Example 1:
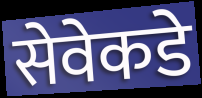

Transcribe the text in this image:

सेवेकडे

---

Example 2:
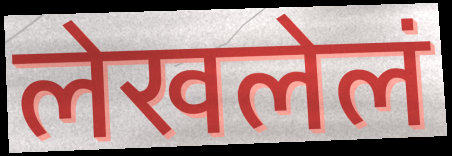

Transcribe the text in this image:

लेखलेलं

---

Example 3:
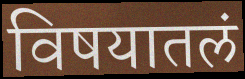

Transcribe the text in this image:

विषयातलं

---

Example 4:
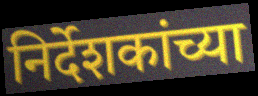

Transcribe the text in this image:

निर्देशकांच्या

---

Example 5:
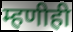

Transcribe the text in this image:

म्हणीही